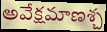
అవేక్షమాణశ్చ